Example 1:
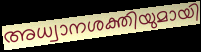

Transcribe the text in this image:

അധ്വാനശക്തിയുമായി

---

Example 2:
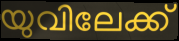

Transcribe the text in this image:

യുവിലേക്ക്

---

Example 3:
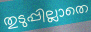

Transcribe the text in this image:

തുടുപ്പില്ലാതെ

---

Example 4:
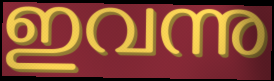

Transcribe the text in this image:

ഇവന്നു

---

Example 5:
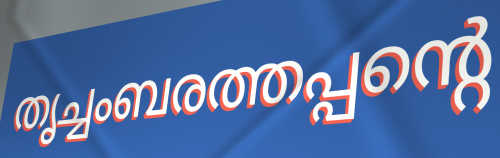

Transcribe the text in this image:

തൃച്ചംബരത്തപ്പന്റെ